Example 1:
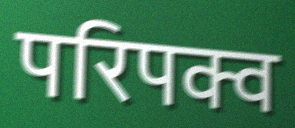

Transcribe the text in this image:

परिपक्व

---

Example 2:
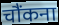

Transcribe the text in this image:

चौंकना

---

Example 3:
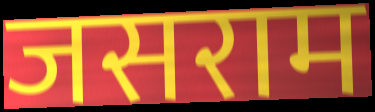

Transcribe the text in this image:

जसराम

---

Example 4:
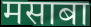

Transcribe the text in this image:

मसाबा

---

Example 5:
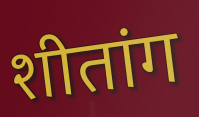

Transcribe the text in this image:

शीतांग